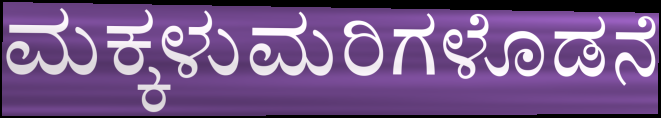
ಮಕ್ಕಳುಮರಿಗಳೊಡನೆ